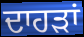
ਦਾਹੜਾਂ